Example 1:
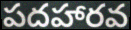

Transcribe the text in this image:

పదహారవ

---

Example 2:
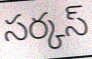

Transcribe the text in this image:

సర్కస్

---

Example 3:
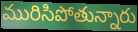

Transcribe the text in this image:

మురిసిపోతున్నారు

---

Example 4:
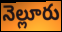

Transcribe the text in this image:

నెల్లూరు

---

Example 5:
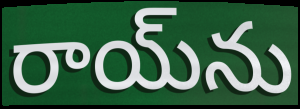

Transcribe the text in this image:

రాయ్‌ను